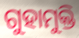
ଗୁହାମୁକ୍ତି